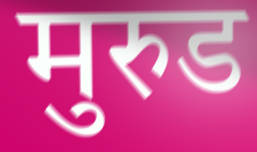
मुरुड